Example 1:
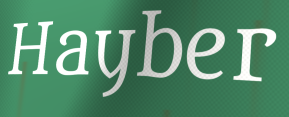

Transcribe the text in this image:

Hayber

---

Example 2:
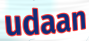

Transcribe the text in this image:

udaan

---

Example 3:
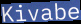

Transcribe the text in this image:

Kivabe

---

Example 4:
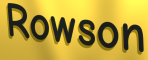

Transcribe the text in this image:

Rowson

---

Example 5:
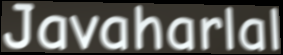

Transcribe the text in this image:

Javaharlal